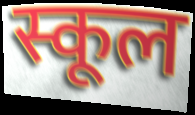
स्कूल